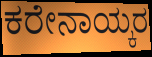
ಕರೇನಾಯ್ಕರ